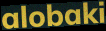
alobaki